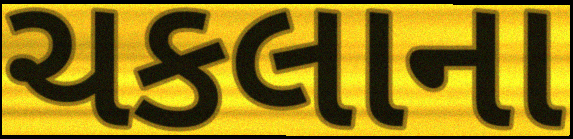
ચકલાના